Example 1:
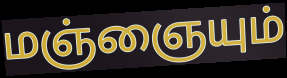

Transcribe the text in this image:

மஞ்ஞையும்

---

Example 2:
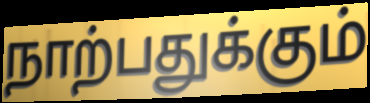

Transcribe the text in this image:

நாற்பதுக்கும்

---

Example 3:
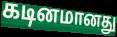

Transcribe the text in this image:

கடினமானது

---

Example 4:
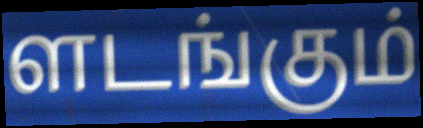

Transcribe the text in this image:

ளடங்கும்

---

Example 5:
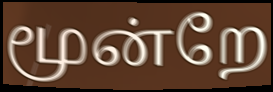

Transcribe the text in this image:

மூன்றே